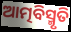
ଆତ୍ମବିସ୍ମୃତି